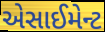
એસાઈમેન્ટ